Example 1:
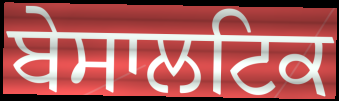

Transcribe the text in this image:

ਬੇਸਾਲਟਿਕ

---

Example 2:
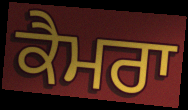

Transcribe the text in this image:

ਕੈਮਰਾ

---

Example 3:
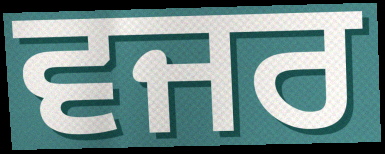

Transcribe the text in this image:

ਵਜਰ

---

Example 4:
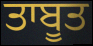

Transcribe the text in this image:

ਤਾਬੂਤ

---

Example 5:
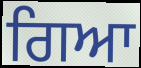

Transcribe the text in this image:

ਗਿਆ